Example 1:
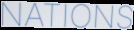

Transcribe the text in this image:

NATIONS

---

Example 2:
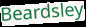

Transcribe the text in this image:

Beardsley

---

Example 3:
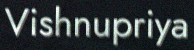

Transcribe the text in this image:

Vishnupriya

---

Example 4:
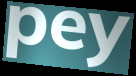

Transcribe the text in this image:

pey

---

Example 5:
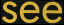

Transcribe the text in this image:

see